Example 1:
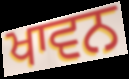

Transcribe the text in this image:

ਖਾਵਨ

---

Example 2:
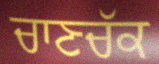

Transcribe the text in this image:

ਚਾਣਚੱਕ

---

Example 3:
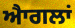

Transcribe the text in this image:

ਐਾਗਲਾਂ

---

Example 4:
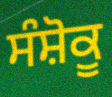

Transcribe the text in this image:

ਸੰਸ਼ੋਕੂ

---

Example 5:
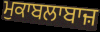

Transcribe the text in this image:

ਮੁਕਾਬਲਾਬਾਜ਼